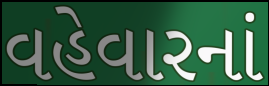
વહેવારનાં